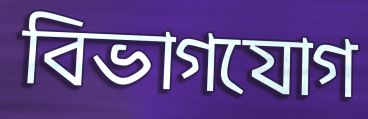
বিভাগযোগ